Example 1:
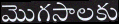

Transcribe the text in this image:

మొగసాలకు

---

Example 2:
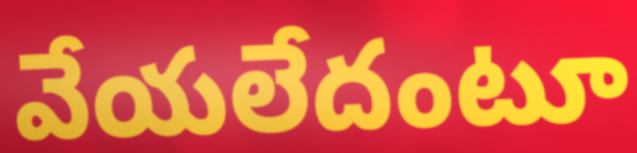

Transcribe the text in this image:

వేయలేదంటూ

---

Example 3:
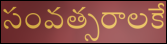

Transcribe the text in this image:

సంవత్సరాలకే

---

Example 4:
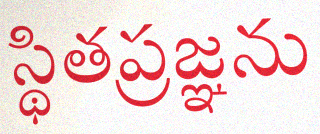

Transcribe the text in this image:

స్థితప్రజ్ఞను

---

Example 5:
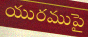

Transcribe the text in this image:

యురముపై